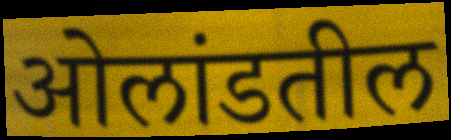
ओलांडतील